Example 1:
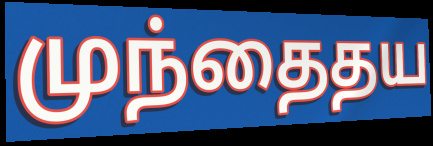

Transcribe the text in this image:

முந்தைதய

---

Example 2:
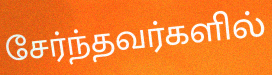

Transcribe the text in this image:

சேர்ந்தவர்களில்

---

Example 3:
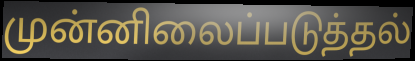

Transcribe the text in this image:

முன்னிலைப்படுத்தல்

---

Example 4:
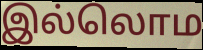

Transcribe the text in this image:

இல்லொம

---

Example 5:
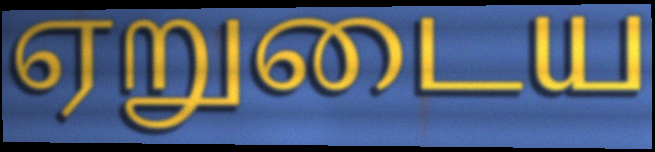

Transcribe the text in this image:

ஏறுடைய